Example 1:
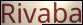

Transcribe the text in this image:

Rivaba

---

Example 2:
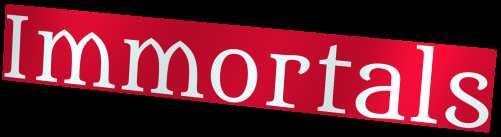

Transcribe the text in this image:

Immortals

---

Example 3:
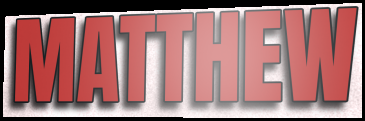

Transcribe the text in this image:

MATTHEW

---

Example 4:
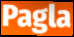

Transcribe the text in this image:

Pagla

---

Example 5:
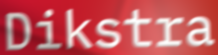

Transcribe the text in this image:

Dikstra